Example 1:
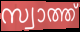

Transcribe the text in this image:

സ്വാത്ത്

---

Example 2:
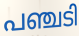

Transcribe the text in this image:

പഞ്ചടി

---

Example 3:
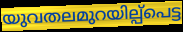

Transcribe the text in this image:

യുവതലമുറയില്പ്പെട്ട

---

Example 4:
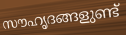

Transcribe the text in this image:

സൗഹൃദങ്ങളുണ്ട്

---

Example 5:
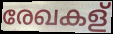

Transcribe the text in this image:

രേഖകള്